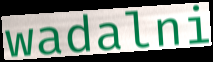
wadalni